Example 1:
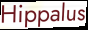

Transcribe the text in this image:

Hippalus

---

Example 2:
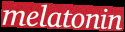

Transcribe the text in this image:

melatonin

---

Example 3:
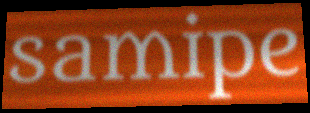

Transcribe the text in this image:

samipe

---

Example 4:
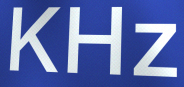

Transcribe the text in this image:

KHz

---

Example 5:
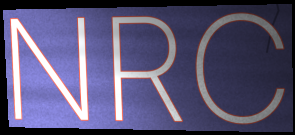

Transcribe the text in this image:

NRC